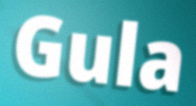
Gula